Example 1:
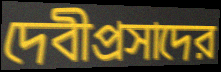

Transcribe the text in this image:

দেবীপ্রসাদের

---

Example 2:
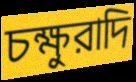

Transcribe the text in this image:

চক্ষুরাদি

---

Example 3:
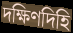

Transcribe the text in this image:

দক্ষিণদিহি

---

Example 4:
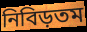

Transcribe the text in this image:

নিবিড়তম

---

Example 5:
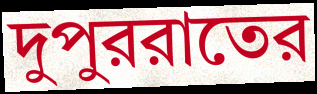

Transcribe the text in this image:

দুপুররাতের